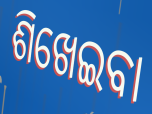
ଶିଖେଇବା